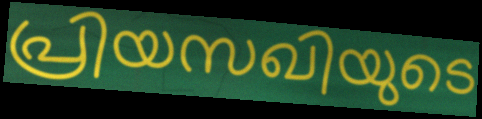
പ്രിയസഖിയുടെ